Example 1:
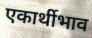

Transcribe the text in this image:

एकार्थीभाव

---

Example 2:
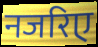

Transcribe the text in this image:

नजरिए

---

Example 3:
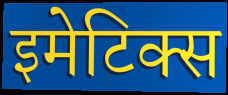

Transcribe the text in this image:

इमेटिक्स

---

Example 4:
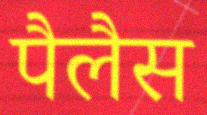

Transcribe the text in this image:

पैलैस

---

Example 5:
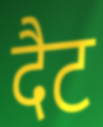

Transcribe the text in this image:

दैट